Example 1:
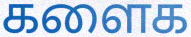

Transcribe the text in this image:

களைக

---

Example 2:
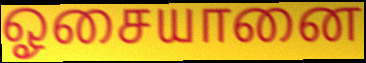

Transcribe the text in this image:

ஓசையானை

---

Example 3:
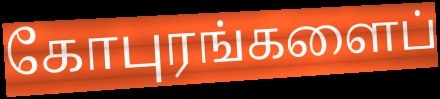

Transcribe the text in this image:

கோபுரங்களைப்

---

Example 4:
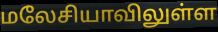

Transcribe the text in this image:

மலேசியாவிலுள்ள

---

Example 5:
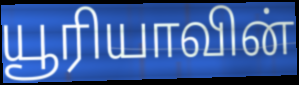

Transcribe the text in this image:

யூரியாவின்